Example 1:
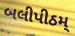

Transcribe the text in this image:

બલીપીઠમ્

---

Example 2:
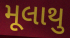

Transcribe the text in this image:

મૂલાથુ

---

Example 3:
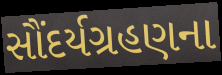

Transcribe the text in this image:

સૌંદર્યગ્રહણના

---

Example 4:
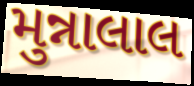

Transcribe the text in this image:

મુન્નાલાલ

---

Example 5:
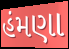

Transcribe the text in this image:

હંમણા